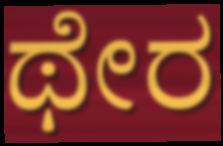
ಥೇರ